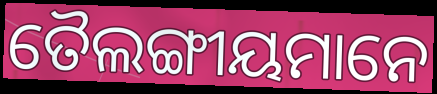
ତୈଲଙ୍ଗୀୟମାନେ